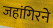
जहांगिरने